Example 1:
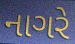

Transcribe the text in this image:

નાગરે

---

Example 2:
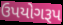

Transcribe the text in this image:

ઉપયોગરૂપ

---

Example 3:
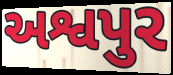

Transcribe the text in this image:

અશ્વપુર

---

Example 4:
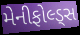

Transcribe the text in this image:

મેનીફોલ્ડ્સ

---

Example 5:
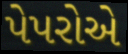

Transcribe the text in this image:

પેપરોએ